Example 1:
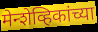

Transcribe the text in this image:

मेन्शेव्हिकांच्या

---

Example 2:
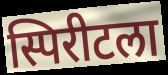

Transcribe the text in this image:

स्पिरीटला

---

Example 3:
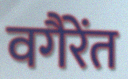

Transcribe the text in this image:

वगैरेंत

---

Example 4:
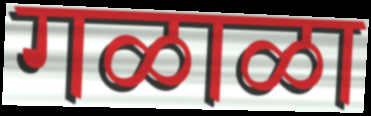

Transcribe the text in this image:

गळाळा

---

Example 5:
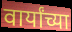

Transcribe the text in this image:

वार्यांच्या